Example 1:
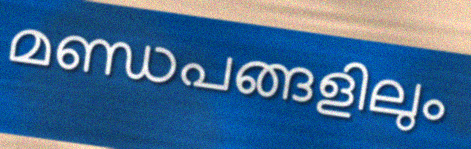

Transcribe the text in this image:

മണ്ഡപങ്ങളിലും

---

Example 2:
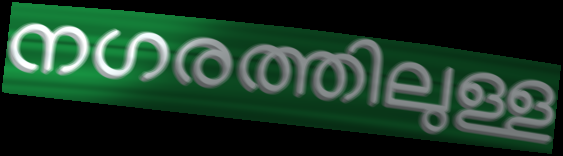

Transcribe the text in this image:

നഗരത്തിലുള്ള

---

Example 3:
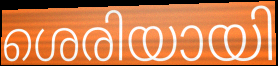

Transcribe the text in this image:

ശെരിയായി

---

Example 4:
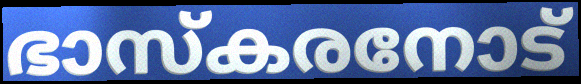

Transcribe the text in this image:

ഭാസ്കരനോട്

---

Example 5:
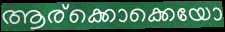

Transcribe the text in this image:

ആര്ക്കൊക്കെയോ